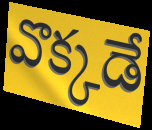
వొక్కడే